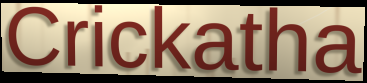
Crickatha